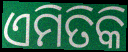
ଏମିତିକି